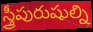
స్త్రీపురుషుల్ని